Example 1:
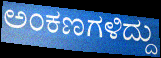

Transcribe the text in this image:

ಅಂಕಣಗಳಿದ್ದು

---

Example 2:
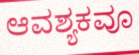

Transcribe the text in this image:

ಆವಶ್ಯಕವೂ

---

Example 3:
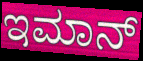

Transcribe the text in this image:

ಇಮಾನ್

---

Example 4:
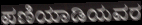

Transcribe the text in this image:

ಪಣಿಯಾಡಿಯವರ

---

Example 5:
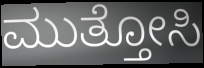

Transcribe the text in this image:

ಮುತ್ತೋಸಿ